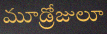
మూడ్రోజులూ